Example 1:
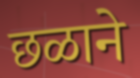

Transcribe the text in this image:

छळाने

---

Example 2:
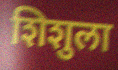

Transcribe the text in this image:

शिशुला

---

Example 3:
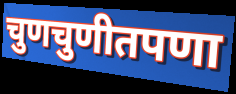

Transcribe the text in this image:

चुणचुणीतपणा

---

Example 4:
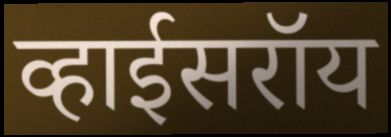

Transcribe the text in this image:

व्हाईसरॉय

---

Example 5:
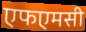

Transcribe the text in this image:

एफएमसी